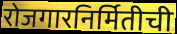
रोजगारनिर्मितीची